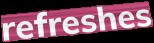
refreshes